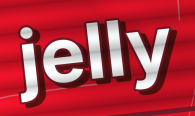
jelly